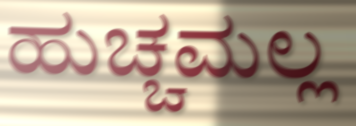
ಹುಚ್ಚಮಲ್ಲ